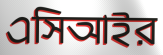
এসিআইর